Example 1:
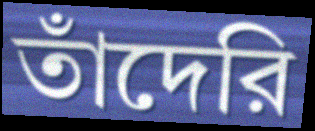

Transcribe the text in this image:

তাঁদেরি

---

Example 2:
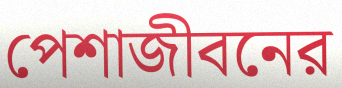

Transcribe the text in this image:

পেশাজীবনের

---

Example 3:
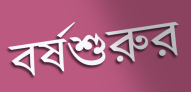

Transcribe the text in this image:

বর্ষশুরুর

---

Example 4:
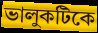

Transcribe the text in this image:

ভালুকটিকে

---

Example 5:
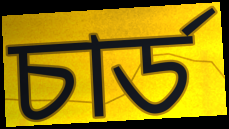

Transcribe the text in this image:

চার্ড